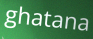
ghatana